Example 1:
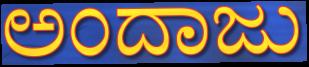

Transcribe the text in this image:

ಅಂದಾಜು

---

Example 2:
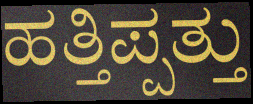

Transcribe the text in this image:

ಹತ್ತಿಪ್ಪತ್ತು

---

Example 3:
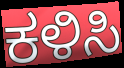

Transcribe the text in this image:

ಕಳಿಸಿ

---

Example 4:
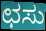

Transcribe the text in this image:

ಛಸು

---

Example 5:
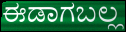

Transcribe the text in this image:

ಈಡಾಗಬಲ್ಲ